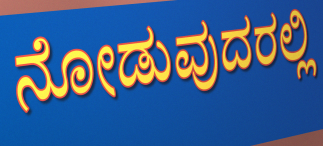
ನೋಡುವುದರಲ್ಲಿ